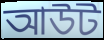
আউট